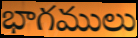
భాగములు